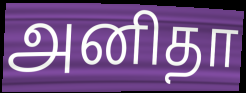
அனிதா